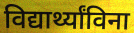
विद्यार्थ्यांविना